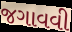
જગાવવી